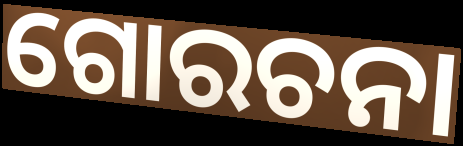
ଗୋରଚନା